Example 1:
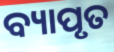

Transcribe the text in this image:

ବ୍ୟାପୃତ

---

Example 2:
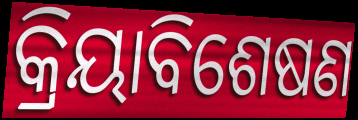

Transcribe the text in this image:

କ୍ରିୟାବିଶେଷଣ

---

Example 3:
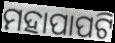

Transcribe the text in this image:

ମହାପାପଟି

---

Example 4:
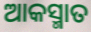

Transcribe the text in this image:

ଆକସ୍ମାତ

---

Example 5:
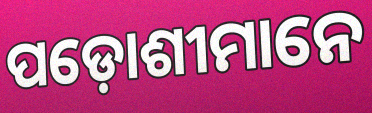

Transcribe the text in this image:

ପଡ଼ୋଶୀମାନେ